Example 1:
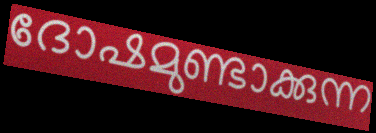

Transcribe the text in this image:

ദോഷമുണ്ടാക്കുന്ന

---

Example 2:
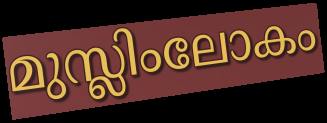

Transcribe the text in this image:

മുസ്ലിംലോകം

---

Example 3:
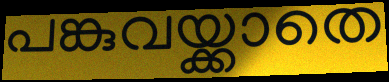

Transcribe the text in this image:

പങ്കുവയ്ക്കാതെ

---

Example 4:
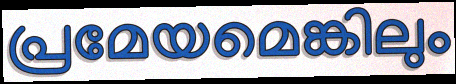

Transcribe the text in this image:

പ്രമേയമെങ്കിലും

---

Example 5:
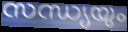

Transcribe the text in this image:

സന്ധ്യയും